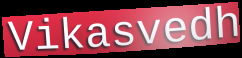
Vikasvedh